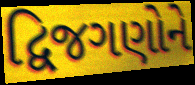
દ્વિજગણોને